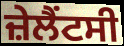
ਜ਼ੇਲੈਂਟਸੀ